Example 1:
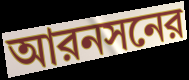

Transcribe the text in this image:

আরনসনের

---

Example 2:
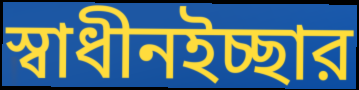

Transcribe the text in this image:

স্বাধীনইচ্ছার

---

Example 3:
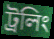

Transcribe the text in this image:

ট্রলিং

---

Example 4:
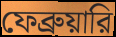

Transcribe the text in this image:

ফেব্রুয়ারি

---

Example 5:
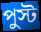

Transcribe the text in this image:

পুস্ট